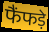
फैंफड़े